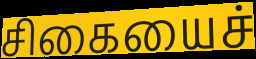
சிகையைச்